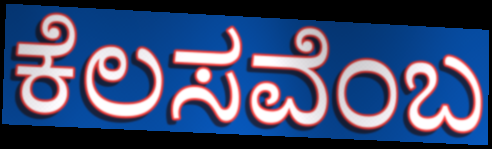
ಕೆಲಸವೆಂಬ